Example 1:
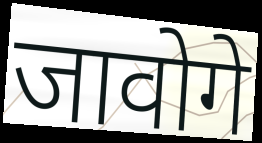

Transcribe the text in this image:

जावोगे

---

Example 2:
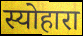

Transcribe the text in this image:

स्योहारा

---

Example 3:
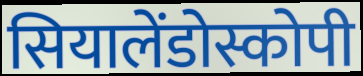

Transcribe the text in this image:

सियालेंडोस्कोपी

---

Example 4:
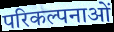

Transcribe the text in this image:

परिकल्पनाओं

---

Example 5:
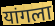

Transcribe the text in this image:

यांगला